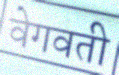
वेगवती